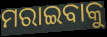
ମରାଇବାକୁ